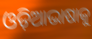
ଓଡ଼ିଆଭାଷାକୁ